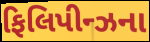
ફિલિપીન્ઝના